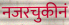
नजरचुकीनं